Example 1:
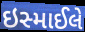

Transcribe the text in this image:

ઇસ્માઈલે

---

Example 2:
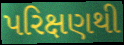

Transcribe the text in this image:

પરિક્ષણથી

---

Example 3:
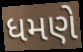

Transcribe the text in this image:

ધમણે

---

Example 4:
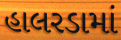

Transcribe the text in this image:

હાલરડામાં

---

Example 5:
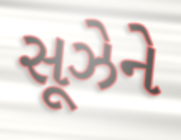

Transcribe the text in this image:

સૂઝેને